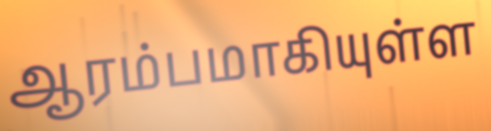
ஆரம்பமாகியுள்ள